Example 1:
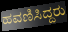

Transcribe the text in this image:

ಹವಣಿಸಿದ್ದರು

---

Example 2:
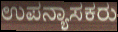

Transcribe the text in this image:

ಉಪನ್ಯಾಸಕರು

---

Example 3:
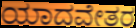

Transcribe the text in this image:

ಯಾದವೇತರ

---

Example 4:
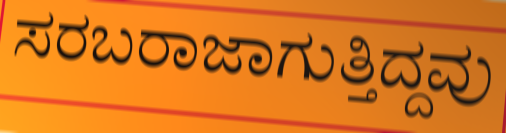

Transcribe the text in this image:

ಸರಬರಾಜಾಗುತ್ತಿದ್ದವು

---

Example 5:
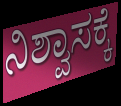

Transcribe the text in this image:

ನಿಶ್ವಾಸಕ್ಕೆ